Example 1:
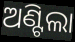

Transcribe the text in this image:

ଅଣ୍ଟିଲା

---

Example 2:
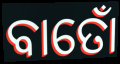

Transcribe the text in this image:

ବାତୋଁ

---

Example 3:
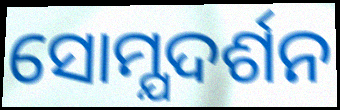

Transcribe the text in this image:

ସୋମ୍ଯଦର୍ଶନ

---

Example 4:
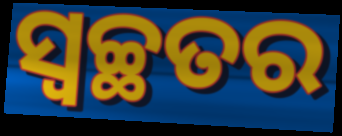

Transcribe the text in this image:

ସ୍ଵଚ୍ଛତର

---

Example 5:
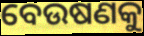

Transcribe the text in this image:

ବେଉଷଣକୁ